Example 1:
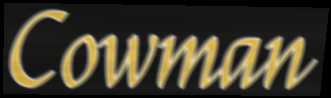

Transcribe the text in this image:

Cowman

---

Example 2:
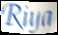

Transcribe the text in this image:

Riya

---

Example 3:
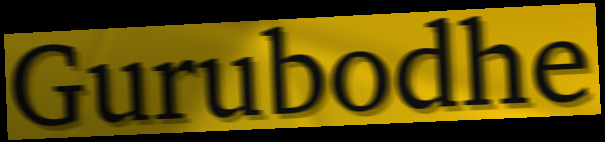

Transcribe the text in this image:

Gurubodhe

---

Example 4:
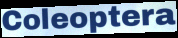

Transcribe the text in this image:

Coleoptera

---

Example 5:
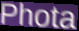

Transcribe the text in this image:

Phota